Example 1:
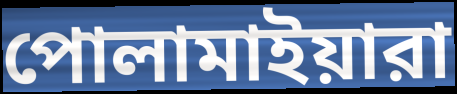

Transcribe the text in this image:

পোলামাইয়ারা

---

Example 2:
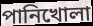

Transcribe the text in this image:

পানিখোলা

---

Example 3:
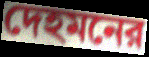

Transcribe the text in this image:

দেহমনের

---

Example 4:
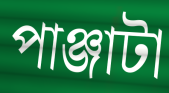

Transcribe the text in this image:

পাঞ্জাটা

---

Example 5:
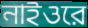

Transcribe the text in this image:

নাইওরে